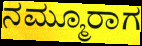
ನಮ್ಮೂರಾಗ